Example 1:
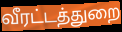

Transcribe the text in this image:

வீரட்டத்துறை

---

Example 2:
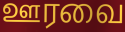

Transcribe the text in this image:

ஊரவை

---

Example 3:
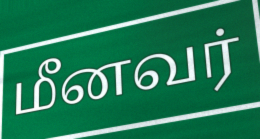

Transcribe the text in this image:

மீனவர்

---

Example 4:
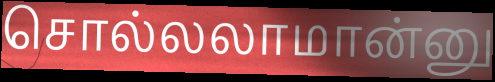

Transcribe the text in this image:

சொல்லலாமான்னு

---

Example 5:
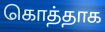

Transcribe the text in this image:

கொத்தாக